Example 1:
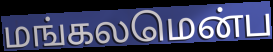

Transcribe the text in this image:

மங்கலமென்ப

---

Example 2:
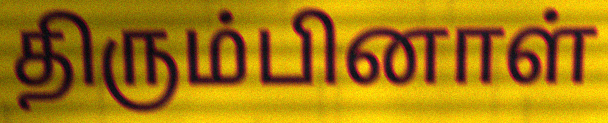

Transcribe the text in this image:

திரும்பினாள்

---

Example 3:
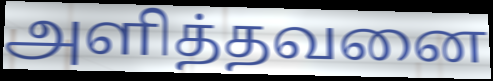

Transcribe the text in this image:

அளித்தவனை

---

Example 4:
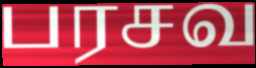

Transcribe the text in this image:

பரசவ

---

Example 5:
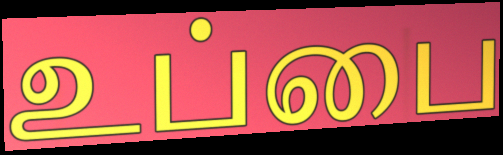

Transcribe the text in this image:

உப்பை